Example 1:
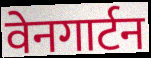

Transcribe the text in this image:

वेनगार्टन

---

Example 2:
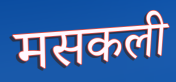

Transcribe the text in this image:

मसकली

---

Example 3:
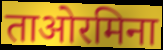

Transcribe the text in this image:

ताओरमिना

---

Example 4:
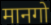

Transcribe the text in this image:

मानगो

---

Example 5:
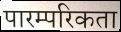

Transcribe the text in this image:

पारम्परिकता